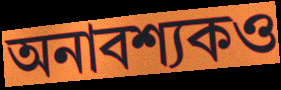
অনাবশ্যকও